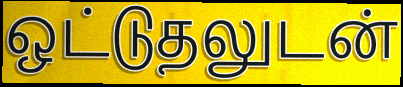
ஒட்டுதலுடன்